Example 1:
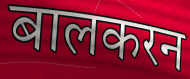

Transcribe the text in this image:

बालकरन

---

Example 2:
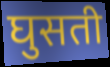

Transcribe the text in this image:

घुसती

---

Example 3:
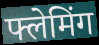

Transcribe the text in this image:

फ्लेमिंग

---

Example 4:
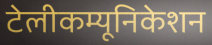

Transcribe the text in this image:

टेलीकम्‍यूनिकेशन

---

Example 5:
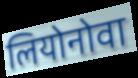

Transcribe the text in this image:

लियोनोवा